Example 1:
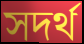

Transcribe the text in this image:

সদর্থ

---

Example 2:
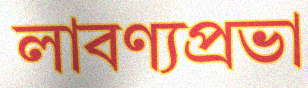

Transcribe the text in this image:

লাবণ্যপ্রভা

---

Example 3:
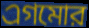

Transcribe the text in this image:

এগমোর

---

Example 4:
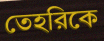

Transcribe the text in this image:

তেহরিকে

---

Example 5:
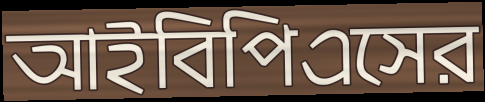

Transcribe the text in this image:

আইবিপিএসের